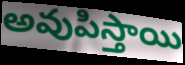
అవుపిస్తాయి